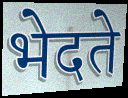
भेदते